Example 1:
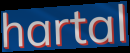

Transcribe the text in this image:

hartal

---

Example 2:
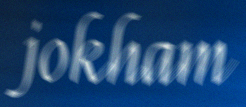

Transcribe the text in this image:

jokham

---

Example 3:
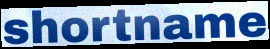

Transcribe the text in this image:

shortname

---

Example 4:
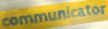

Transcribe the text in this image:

communicator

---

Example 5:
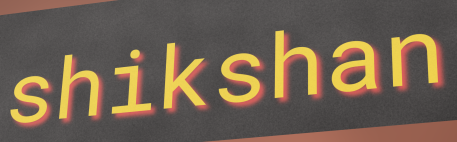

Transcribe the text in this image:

shikshan